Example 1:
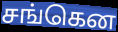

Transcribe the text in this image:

சங்கென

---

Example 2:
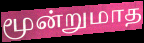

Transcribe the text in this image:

மூன்றுமாத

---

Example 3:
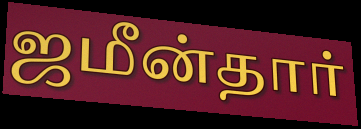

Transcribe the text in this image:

ஜமீன்தார்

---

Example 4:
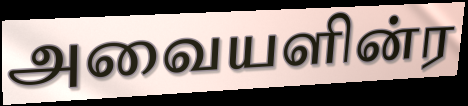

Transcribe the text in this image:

அவையளின்ர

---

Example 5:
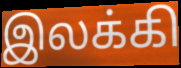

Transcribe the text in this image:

இலக்கி